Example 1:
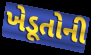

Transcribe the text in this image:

ખેડૂતોની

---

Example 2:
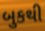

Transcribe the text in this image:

બુકથી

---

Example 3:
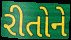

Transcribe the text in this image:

રીતોને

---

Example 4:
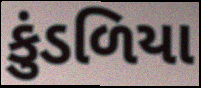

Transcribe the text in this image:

કુંડળિયા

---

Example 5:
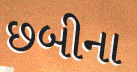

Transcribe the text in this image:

છબીના